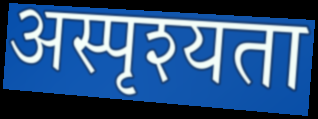
अस्पृश्यता